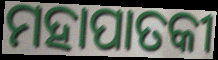
ମହାପାତକୀ